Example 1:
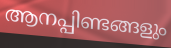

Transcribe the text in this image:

ആനപ്പിണ്ടങ്ങളും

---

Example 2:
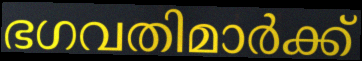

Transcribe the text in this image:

ഭഗവതിമാർക്ക്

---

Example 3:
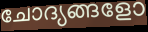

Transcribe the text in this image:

ചോദ്യങ്ങളോ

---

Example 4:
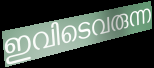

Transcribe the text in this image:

ഇവിടെവരുന്ന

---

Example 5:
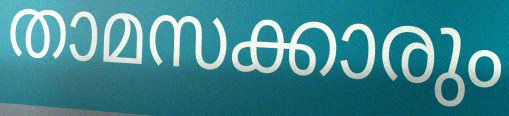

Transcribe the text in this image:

താമസക്കാരും